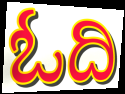
ಓದಿ